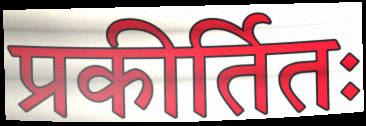
प्रकीर्तितः